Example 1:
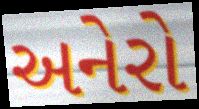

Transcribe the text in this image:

અનેરો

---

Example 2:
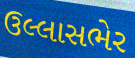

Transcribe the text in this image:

ઉલ્લાસભેર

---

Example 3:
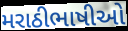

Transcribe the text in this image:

મરાઠીભાષીઓ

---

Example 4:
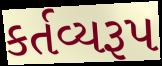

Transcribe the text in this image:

કર્તવ્યરૂપ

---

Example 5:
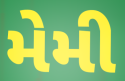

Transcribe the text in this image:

મેમી